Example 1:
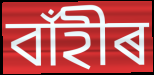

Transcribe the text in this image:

বাঁহীৰ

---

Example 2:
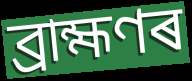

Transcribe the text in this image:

ব্ৰাহ্মণৰ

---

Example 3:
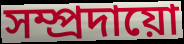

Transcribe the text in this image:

সম্প্ৰদায়ো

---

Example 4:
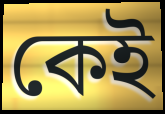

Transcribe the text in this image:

কেই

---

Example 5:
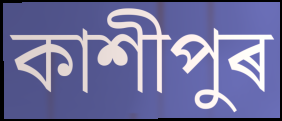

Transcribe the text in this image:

কাশীপুৰ